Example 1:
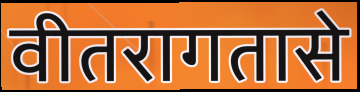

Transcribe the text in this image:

वीतरागतासे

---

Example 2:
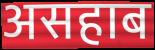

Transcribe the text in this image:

असहाब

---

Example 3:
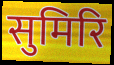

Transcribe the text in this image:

सुमिरि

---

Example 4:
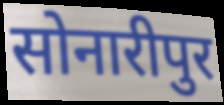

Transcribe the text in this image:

सोनारीपुर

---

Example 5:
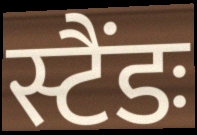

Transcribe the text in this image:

स्टैंडः